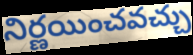
నిర్ణయించవచ్చు